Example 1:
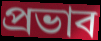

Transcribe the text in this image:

প্রভাব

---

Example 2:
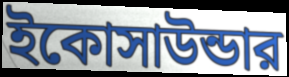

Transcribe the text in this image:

ইকোসাউন্ডার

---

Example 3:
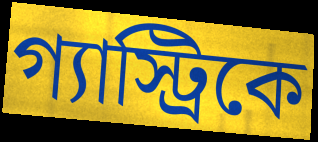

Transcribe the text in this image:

গ্যাস্ট্রিকে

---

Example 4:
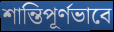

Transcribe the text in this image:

শান্তিপূর্ণভাবে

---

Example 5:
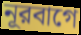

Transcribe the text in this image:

নূরবাগে